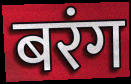
बरंग